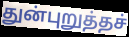
துன்புறுத்தச்